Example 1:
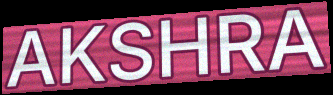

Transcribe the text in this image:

AKSHRA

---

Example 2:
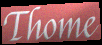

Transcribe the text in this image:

Thome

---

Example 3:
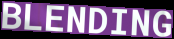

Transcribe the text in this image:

BLENDING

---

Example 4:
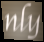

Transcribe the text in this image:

nly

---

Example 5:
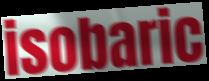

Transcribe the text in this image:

isobaric